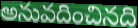
అనువదించినది